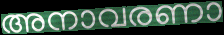
അനാവരണാ